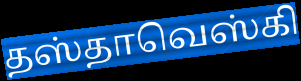
தஸ்தாவெஸ்கி